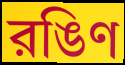
রঙিণ